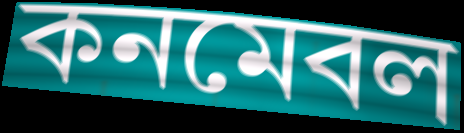
কনমেবল